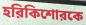
হরিকিশোরকে